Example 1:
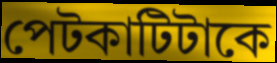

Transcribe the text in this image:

পেটকাটিটাকে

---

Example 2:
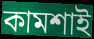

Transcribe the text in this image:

কামশাই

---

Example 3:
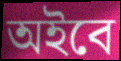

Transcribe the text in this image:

অইবে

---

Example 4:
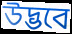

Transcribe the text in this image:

উদ্ভবে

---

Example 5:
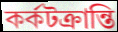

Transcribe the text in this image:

কর্কটক্রান্তি